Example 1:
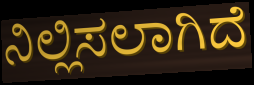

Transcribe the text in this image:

ನಿಲ್ಲಿಸಲಾಗಿದೆ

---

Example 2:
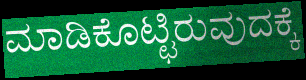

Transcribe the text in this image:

ಮಾಡಿಕೊಟ್ಟಿರುವುದಕ್ಕೆ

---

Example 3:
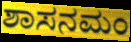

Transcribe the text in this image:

ಶಾಸನಮಂ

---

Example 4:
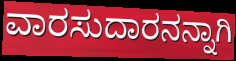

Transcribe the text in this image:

ವಾರಸುದಾರನನ್ನಾಗಿ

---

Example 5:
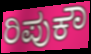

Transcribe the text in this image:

ರಿಪುಕೌ